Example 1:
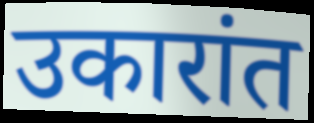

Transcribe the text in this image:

उकारांत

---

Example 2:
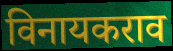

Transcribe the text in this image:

विनायकराव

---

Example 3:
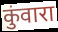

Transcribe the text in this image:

कुंवारा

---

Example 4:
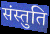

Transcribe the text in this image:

संस्तुति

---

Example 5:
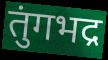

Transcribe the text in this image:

तुंगभद्र